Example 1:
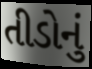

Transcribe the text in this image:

તીડોનું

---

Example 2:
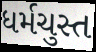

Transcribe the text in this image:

ધર્મચુસ્ત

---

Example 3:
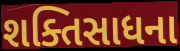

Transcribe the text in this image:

શક્તિસાધના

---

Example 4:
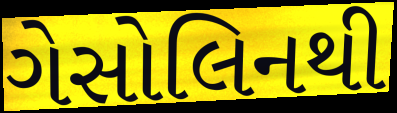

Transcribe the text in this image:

ગેસોલિનથી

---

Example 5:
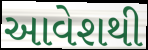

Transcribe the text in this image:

આવેશથી